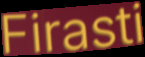
Firasti